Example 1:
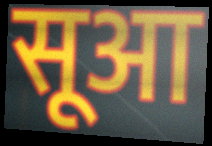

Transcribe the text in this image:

सूआ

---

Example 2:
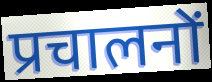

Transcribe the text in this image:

प्रचालनों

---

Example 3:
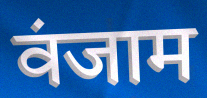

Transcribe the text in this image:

वंजाम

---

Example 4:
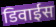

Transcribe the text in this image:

डिवाईस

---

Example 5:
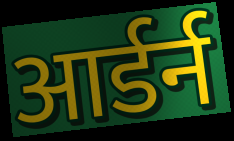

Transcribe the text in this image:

आर्डर्न